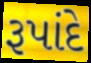
રૂપાંદે